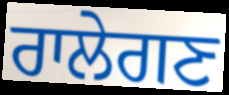
ਰਾਲੇਗਣ